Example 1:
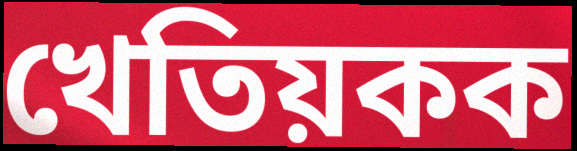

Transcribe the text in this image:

খেতিয়কক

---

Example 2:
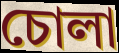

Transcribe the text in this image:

চোলা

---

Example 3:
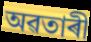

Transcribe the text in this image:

অৱতাৰী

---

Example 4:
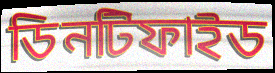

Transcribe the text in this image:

ডিনটিফাইড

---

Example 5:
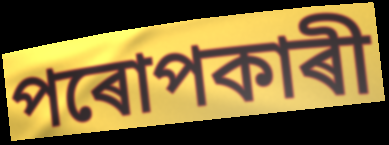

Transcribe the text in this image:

পৰোপকাৰী